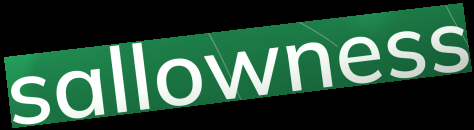
sallowness